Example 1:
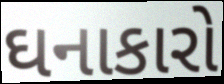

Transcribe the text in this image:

ઘનાકારો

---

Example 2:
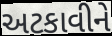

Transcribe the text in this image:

અટકાવીને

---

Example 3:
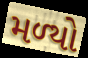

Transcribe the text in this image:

મળ્‍યો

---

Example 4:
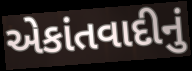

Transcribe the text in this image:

એકાંતવાદીનું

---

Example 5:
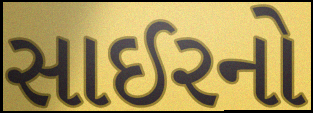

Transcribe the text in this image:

સાઈરનો